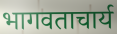
भागवताचार्य